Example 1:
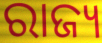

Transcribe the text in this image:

ରାଜ୍ଯ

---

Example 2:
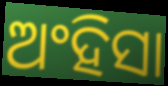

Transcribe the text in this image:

ଅଂହିସା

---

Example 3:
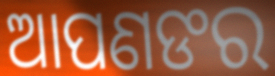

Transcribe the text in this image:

ଆପଣଙର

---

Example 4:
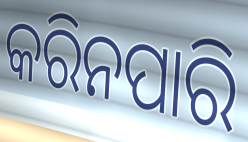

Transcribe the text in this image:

କରିନପାରି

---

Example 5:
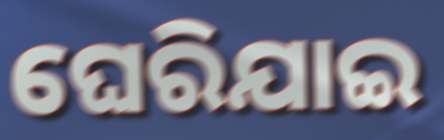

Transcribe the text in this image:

ଘେରିଯାଇ